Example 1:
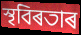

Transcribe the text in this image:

স্থবিৰতাৰ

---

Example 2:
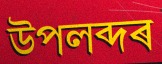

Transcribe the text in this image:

উপলব্দৰ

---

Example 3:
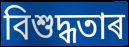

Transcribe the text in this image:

বিশুদ্ধতাৰ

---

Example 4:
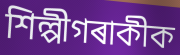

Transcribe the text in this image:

শিল্পীগৰাকীক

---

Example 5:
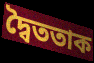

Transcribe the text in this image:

দ্বৈততাক